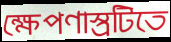
ক্ষেপণাস্ত্রটিতে